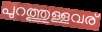
പുറത്തുള്ളവര്